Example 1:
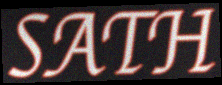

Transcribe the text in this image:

SATH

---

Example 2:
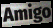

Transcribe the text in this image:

Amigo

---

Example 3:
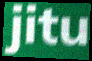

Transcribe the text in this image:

jitu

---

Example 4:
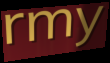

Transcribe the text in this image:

rmy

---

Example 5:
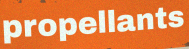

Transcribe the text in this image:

propellants